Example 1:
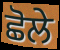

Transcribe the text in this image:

ਛੋਲੇ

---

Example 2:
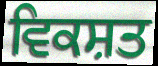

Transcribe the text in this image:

ਵਿਕਸ਼ਤ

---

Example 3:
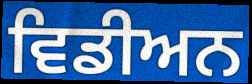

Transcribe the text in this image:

ਵਿਡੀਅਨ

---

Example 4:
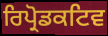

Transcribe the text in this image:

ਰਿਪ੍ਰੋਡਕਟਿਵ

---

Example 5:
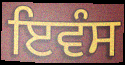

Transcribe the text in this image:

ਇਵੰਸ